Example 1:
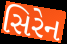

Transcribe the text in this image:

સિરેન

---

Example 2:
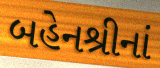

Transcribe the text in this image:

બહેનશ્રીનાં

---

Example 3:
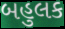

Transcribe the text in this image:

બહુલક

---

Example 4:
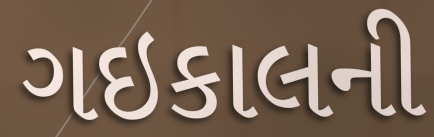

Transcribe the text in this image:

ગઇકાલની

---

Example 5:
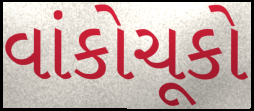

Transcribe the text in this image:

વાંકોચૂકો